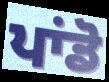
ਪਾਂਡੋ